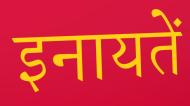
इनायतें